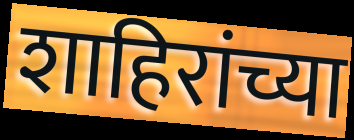
शाहिरांच्या